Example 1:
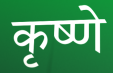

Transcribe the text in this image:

कृष्णे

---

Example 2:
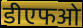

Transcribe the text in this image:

डीएफओ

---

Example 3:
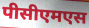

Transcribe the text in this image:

पीसीएमएस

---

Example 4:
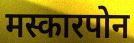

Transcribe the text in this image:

मस्कारपोन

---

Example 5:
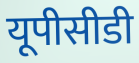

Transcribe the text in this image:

यूपीसीडी